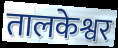
तालकेश्वर